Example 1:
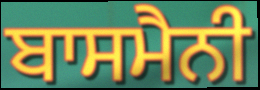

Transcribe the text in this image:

ਬਾਸਮੈਨੀ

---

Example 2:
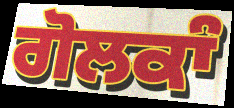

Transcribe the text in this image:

ਗੋਲਕਾੰ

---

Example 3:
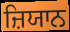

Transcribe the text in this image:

ਜ਼ਿਯਾਨ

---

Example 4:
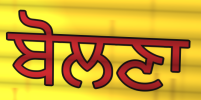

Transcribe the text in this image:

ਬੋਲਣਾ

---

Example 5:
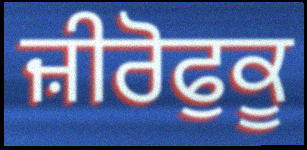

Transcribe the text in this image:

ਜ਼ੀਰੋਫੁਕੂ